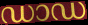
ഡാഡ